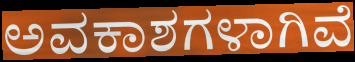
ಅವಕಾಶಗಳಾಗಿವೆ